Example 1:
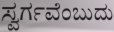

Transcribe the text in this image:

ಸ್ವರ್ಗವೆಂಬುದು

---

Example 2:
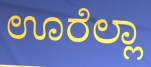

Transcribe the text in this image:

ಊರೆಲ್ಲಾ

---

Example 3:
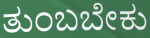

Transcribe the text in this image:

ತುಂಬಬೇಕು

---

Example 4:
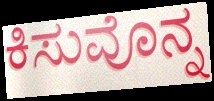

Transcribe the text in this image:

ಕಿಸುವೊನ್ನ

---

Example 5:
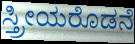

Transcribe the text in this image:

ಸ್ತ್ರೀಯರೊಡನೆ